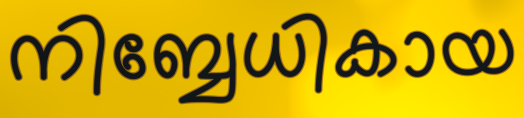
നിബ്ബേധികായ